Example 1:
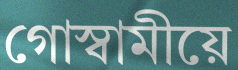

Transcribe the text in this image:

গোস্বামীয়ে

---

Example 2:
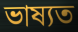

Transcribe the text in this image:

ভাষ্যত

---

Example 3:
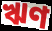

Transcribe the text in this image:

ঋণ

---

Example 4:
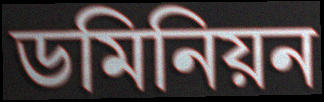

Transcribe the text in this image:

ডমিনিয়ন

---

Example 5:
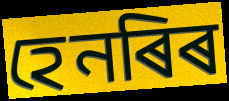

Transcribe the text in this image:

হেনৰিৰ